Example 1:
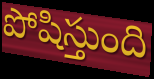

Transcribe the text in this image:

పోషిస్తుంది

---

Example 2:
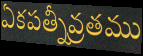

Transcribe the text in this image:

ఏకపత్నీవ్రతము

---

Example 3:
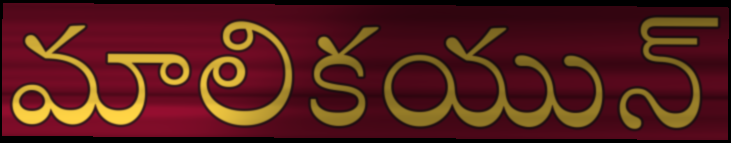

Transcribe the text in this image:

మాలికయున్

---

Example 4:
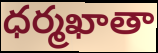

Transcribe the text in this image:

ధర్మఖాతా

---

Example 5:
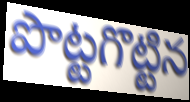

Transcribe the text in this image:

పొట్టగొట్టిన